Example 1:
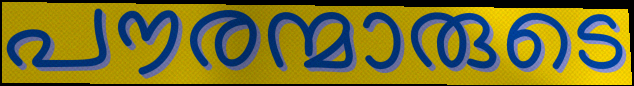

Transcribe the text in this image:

പൗരന്മാരുടെ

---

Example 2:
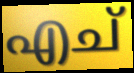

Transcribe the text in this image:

എച്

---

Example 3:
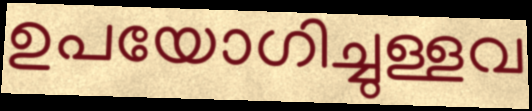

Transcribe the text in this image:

ഉപയോഗിച്ചുള്ളവ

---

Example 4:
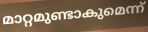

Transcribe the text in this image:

മാറ്റമുണ്ടാകുമെന്ന്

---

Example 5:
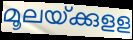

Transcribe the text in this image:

മൂലയ്‌ക്കുളള